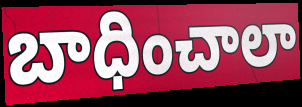
బాధించాలా